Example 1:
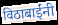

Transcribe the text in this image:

विठाबाईंनी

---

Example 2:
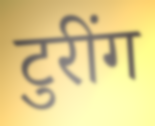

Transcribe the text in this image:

टुरींग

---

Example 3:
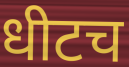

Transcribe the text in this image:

धीटच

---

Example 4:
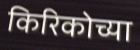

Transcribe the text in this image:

किरिकोच्या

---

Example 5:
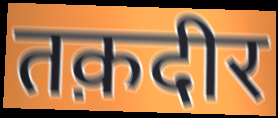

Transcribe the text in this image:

तक़दीर